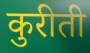
कुरीती